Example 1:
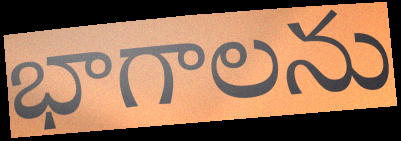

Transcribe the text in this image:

భాగాలను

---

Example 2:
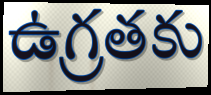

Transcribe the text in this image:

ఉగ్రతకు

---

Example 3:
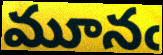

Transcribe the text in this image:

మూనఁ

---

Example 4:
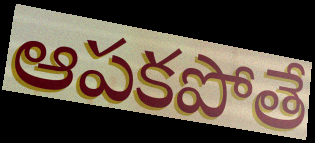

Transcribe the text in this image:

ఆపకపోతే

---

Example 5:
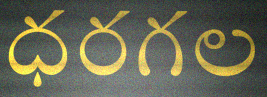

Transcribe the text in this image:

ధరగల